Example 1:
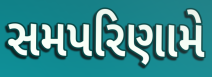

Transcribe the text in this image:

સમપરિણામે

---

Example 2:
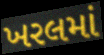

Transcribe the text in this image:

ખરલમાં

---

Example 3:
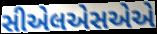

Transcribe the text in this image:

સીએલએસએએ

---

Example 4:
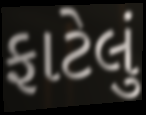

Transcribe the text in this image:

ફાટેલું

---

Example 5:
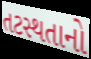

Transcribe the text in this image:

તટસ્થતાનો